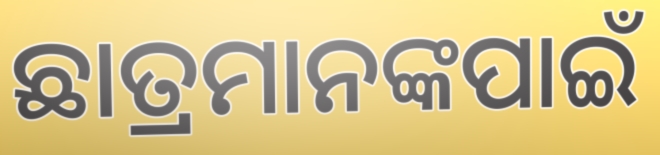
ଛାତ୍ରମାନଙ୍କପାଇଁ